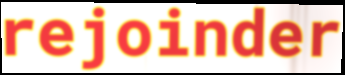
rejoinder